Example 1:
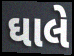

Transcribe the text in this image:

ઘાલે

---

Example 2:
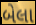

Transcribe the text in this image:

બેલા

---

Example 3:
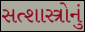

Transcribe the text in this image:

સત્શાસ્ત્રોનું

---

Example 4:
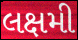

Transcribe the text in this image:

લક્ષમી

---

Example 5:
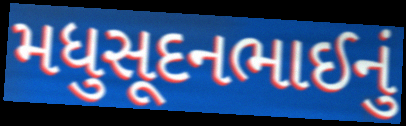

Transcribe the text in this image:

મધુસૂદનભાઈનું